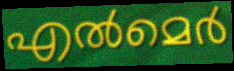
എൽമെർ